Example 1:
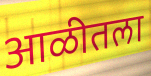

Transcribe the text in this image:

आळीतला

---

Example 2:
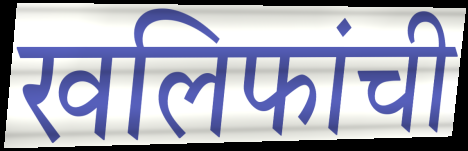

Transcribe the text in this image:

खलिफांची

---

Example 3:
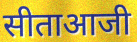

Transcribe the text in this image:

सीताआजी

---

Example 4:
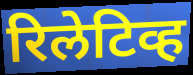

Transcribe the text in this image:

रिलेटिव्ह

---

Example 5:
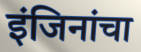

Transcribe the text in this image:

इंजिनांचा